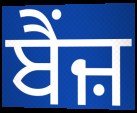
ਬੈਂਜ਼